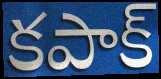
కపాక్